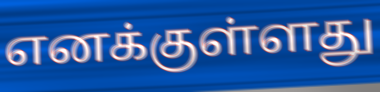
எனக்குள்ளது